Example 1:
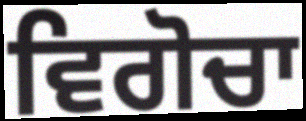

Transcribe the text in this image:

ਵਿਗੋਚਾ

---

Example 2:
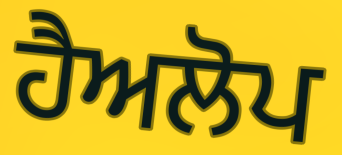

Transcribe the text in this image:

ਹੈਅਲੋਪ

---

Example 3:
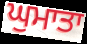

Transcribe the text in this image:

ਘੁਮਾਤਾ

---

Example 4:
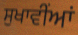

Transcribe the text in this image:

ਸੁਖਾਵੀਂਆਂ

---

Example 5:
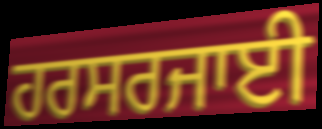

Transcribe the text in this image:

ਹਰਸਰਜਾਈ